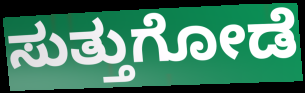
ಸುತ್ತುಗೋಡೆ